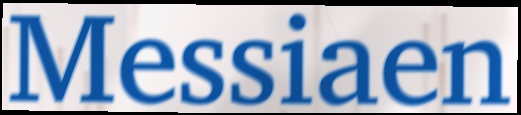
Messiaen